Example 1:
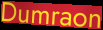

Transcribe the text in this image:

Dumraon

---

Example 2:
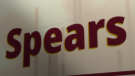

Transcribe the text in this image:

Spears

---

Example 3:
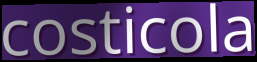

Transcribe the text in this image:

costicola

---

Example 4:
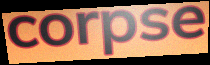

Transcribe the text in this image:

corpse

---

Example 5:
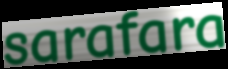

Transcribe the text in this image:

sarafara